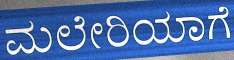
ಮಲೇರಿಯಾಗೆ